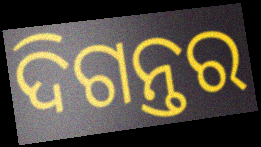
ଦିଗନ୍ତର